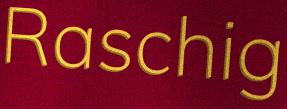
Raschig